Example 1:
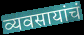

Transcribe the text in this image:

व्यवसायांचं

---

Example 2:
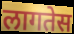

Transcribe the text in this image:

लागतेस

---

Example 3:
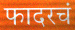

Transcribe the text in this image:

फादरचं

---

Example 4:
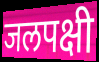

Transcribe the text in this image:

जलपक्षी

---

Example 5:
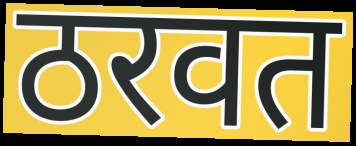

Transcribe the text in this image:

ठरवत